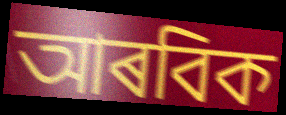
আৰবিক